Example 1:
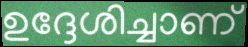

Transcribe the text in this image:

ഉദ്ദേശിച്ചാണ്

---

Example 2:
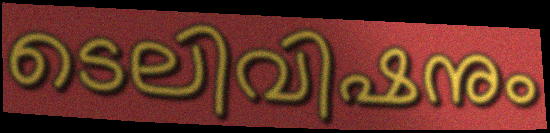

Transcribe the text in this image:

ടെലിവിഷനും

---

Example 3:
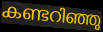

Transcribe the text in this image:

കണ്ടറിഞ്ഞു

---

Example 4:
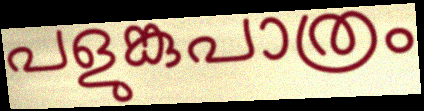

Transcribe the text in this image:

പളുങ്കുപാത്രം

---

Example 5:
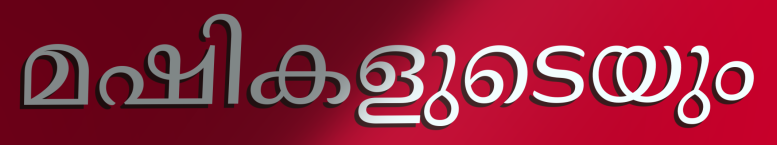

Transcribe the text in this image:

മഷികളുടെയും